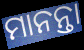
ମାନନ୍ତା